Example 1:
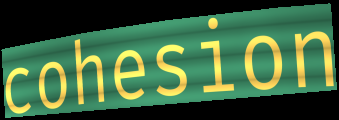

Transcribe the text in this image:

cohesion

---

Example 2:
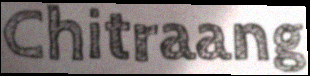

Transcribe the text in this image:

Chitraang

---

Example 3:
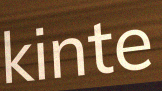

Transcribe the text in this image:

kinte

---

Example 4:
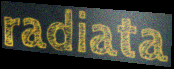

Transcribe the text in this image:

radiata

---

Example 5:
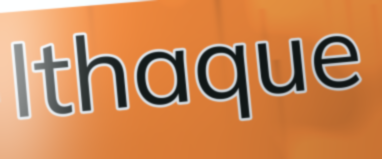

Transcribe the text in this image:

Ithaque